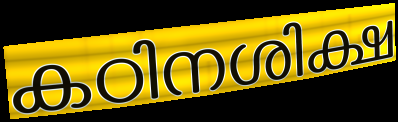
കഠിനശിക്ഷ